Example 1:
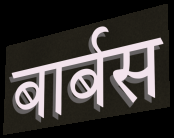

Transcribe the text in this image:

बार्बस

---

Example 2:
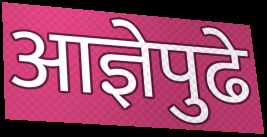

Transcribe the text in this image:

आज्ञेपुढे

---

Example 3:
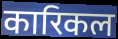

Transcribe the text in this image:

कारिकल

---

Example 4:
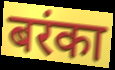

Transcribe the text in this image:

बरंका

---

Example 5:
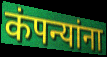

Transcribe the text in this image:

कंपन्यांना